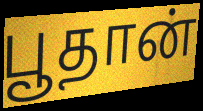
பூதான்